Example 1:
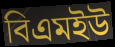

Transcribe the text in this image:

বিএমইউ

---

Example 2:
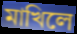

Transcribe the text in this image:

মাখিলে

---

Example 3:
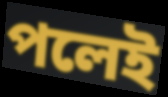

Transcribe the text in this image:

পলেই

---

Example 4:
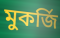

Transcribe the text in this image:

মুকর্জি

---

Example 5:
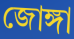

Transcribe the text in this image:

জোঙ্গা